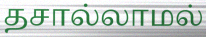
தசால்லாமல்